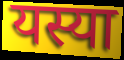
यस्या